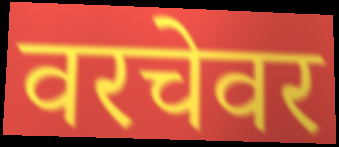
वरचेवर